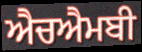
ਐਚਐਮਬੀ